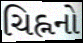
ચિહ્નનો